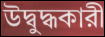
উদ্বুদ্ধকারী